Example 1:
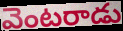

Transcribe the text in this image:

వెంటరాడు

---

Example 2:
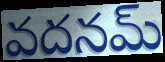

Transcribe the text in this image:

వదనమ్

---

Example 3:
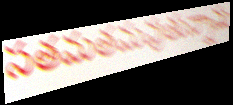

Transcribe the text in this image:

సతమతమవుతున్నాను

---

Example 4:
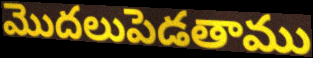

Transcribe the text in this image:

మొదలుపెడతాము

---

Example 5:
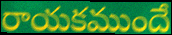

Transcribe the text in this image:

రాయకముందే